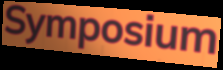
Symposium